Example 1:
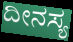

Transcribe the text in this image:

ದೀನಸ್ಯ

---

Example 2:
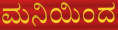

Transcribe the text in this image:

ಮನಿಯಿಂದ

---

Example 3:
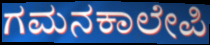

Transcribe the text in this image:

ಗಮನಕಾಲೇಪಿ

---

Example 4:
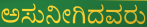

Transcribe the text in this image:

ಅಸುನೀಗಿದವರು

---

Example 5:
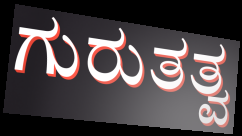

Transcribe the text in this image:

ಗುರುತತ್ವ